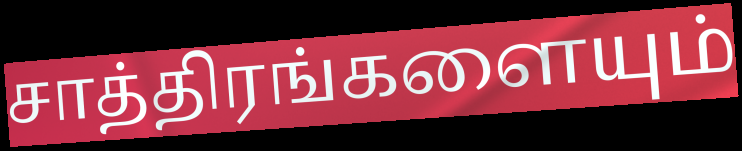
சாத்திரங்களையும்